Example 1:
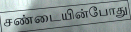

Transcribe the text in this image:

சண்டையின்போது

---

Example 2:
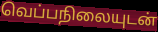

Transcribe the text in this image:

வெப்பநிலையுடன்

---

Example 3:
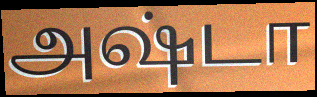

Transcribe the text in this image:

அஷ்டா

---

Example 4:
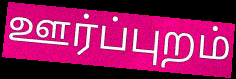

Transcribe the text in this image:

ஊர்ப்புறம்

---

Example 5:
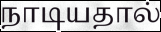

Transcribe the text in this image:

நாடியதால்